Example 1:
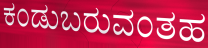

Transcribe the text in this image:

ಕಂಡುಬರುವಂತಹ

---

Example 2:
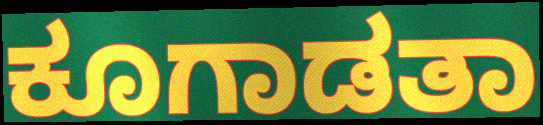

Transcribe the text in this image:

ಕೂಗಾಡತಾ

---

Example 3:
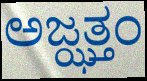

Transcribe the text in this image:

ಅಜ್ಝತ್ತಂ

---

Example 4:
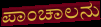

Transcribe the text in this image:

ಪಾಂಚಾಲನು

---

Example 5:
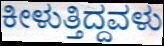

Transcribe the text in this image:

ಕೀಳುತ್ತಿದ್ದವಳು